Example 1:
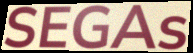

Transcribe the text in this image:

SEGAs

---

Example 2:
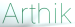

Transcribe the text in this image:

Arthik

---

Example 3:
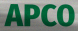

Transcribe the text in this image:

APCO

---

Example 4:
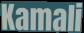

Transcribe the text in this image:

Kamali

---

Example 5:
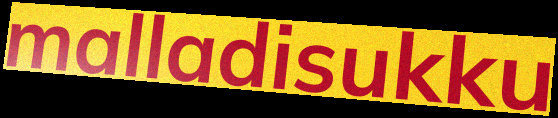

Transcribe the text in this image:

malladisukku